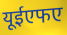
यूईएफए